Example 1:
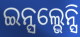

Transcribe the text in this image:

ଇନ୍ସଲ୍ଭେନ୍ସି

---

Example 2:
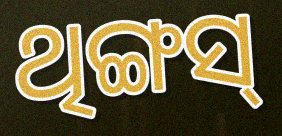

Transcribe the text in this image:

ଥିଙ୍ଗସ୍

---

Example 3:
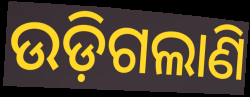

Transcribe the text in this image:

ଉଡ଼ିଗଲାଣି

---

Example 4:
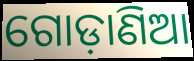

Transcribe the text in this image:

ଗୋଡ଼ାଣିଆ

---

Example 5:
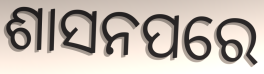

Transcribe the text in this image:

ଶାସନପରେ